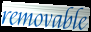
removable